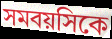
সমবয়সিকে